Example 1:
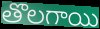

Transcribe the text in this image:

తొలగాయి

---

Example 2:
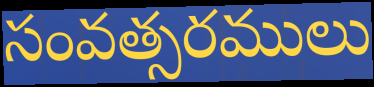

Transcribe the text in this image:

సంవత్సరములు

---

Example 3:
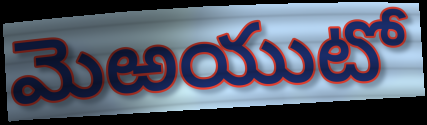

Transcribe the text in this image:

మెఱయుటో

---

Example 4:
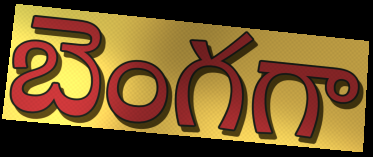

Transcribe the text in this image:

బెంగగా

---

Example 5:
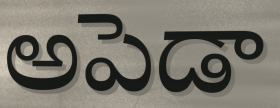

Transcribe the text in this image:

అపెడా